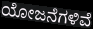
ಯೋಜನೆಗಳಿವೆ